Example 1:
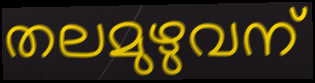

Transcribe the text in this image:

തലമുഴുവന്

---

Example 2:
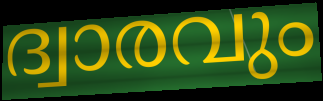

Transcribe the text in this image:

ദ്വാരവും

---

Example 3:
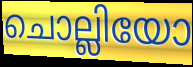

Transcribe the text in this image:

ചൊല്ലിയോ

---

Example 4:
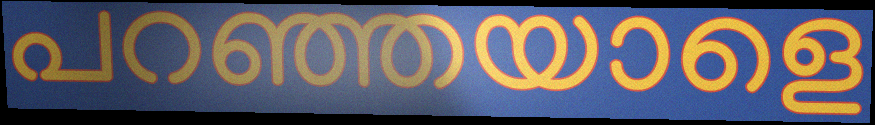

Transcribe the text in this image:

പറഞ്ഞയാളെ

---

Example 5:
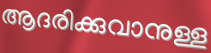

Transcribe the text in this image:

ആദരിക്കുവാനുള്ള